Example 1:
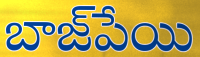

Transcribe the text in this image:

బాజ్‌పేయి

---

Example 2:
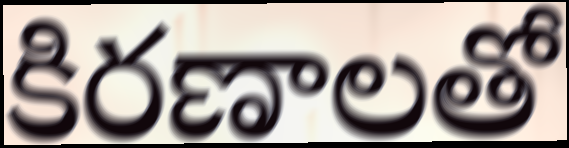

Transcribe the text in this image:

కిరణాలతో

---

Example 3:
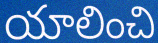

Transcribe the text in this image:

యాలించి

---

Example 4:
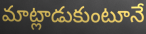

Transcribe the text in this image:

మాట్లాడుకుంటూనే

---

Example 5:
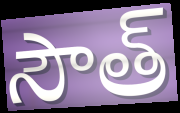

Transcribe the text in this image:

సౌత్